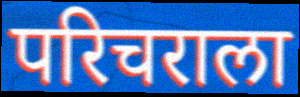
परिचराला